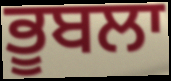
ਭੂਬਲਾ